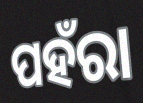
ପହଁରା